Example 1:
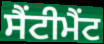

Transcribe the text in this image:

ਸੈਂਟੀਮੈਂਟ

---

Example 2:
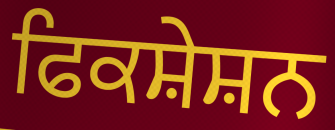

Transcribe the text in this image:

ਫਿਕਸ਼ੇਸ਼ਨ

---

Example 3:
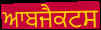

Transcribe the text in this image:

ਆਬਜੈਕਟਸ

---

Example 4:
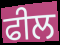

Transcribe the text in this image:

ਫੀਲ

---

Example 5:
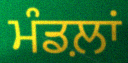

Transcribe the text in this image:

ਮੰਡਲ਼ਾਂ